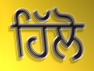
ਹਿੱਲੋ